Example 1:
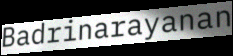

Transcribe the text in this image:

Badrinarayanan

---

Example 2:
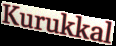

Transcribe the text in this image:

Kurukkal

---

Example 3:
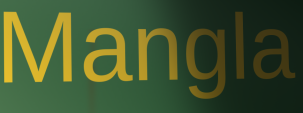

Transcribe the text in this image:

Mangla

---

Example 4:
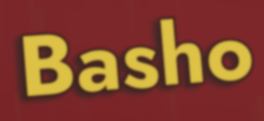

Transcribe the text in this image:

Basho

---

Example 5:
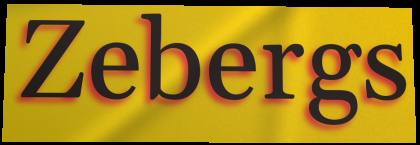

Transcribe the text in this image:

Zebergs